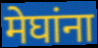
मेघांना